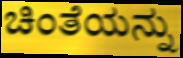
ಚಿಂತೆಯನ್ನು